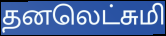
தனலெட்சுமி